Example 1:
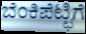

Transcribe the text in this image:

ಬೆಂಕಿಪೆಟ್ಟಿಗೆ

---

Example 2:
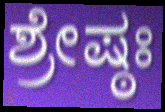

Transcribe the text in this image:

ಶ್ರೇಷ್ಠಃ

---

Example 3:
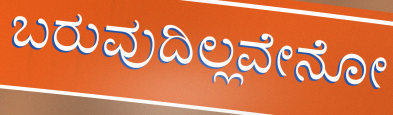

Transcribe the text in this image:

ಬರುವುದಿಲ್ಲವೇನೋ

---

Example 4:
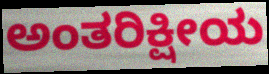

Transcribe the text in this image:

ಅಂತರಿಕ್ಷೀಯ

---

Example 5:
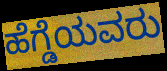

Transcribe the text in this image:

ಹೆಗ್ಡೆಯವರು